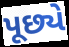
પૂછ્યે